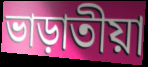
ভাড়াতীয়া